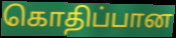
கொதிப்பான